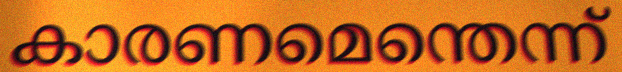
കാരണമെന്തെന്ന്